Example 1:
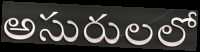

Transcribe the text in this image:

అసురులలో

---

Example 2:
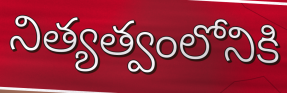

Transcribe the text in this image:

నిత్యత్వంలోనికి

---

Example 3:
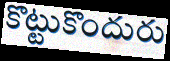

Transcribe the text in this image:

కొట్టుకొందురు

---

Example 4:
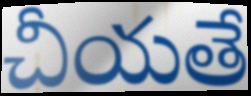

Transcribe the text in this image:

చీయతే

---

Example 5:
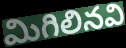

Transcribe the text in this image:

మిగిలినవి